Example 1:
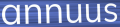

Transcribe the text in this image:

annuus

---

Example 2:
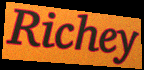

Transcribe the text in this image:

Richey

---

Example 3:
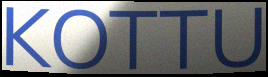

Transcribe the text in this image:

KOTTU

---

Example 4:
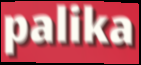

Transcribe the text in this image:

palika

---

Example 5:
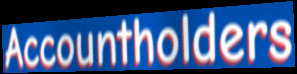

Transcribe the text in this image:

Accountholders